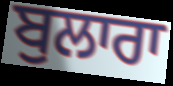
ਬੁਲਾਰਾ